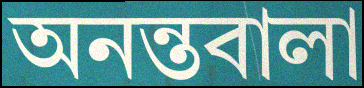
অনন্তবালা